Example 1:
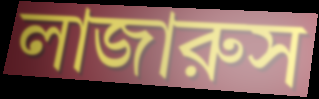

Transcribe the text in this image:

লাজারুস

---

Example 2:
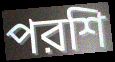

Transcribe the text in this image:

পরশি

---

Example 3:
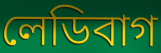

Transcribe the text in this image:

লেডিবাগ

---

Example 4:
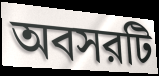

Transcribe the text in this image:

অবসরটি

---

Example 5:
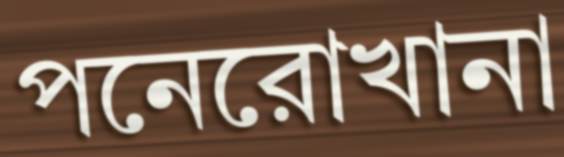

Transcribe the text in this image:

পনেরোখানা